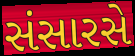
સંસારસે